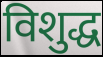
विशुद्ध